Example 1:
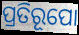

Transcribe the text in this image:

ପ୍ରତିରୂପୋ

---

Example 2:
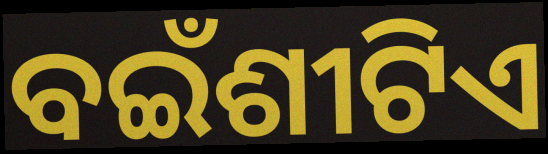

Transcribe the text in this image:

ବଇଁଶୀଟିଏ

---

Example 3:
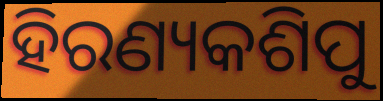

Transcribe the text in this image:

ହିରଣ୍ୟକଶିପୁ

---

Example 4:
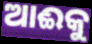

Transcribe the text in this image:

ଆଈକୁ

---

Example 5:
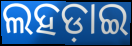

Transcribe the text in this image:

ଲହଡ଼ାଇ